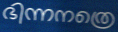
ഭിന്നനത്രെ